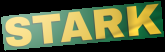
STARK